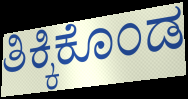
ತಿಕ್ಕಿಕೊಂಡ